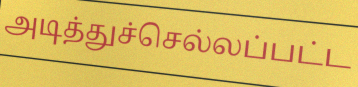
அடித்துச்செல்லப்பட்ட